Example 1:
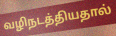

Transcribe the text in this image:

வழிநடத்தியதால்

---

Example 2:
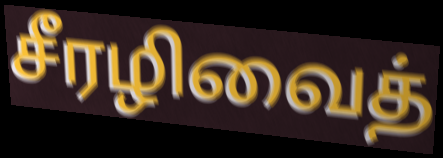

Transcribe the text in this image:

சீரழிவைத்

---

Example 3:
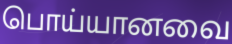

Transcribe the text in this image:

பொய்யானவை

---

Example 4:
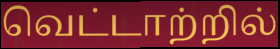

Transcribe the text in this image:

வெட்டாற்றில்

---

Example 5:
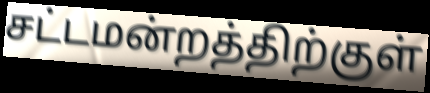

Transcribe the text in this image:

சட்டமன்றத்திற்குள்